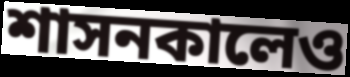
শাসনকালেও